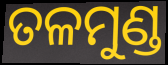
ତଳମୁଣ୍ଡ